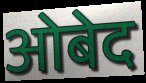
ओबेद